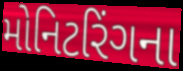
મોનિટરિંગના